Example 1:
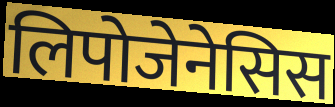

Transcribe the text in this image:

लिपोजेनेसिस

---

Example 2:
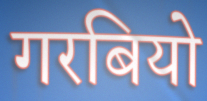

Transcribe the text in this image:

गरबियो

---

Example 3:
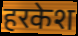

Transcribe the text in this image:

हरकेश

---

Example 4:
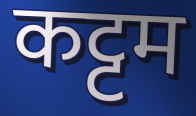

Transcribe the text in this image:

कट्टम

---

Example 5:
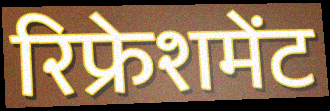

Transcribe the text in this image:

रिफ्रेशमेंट